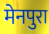
मेनपुरा